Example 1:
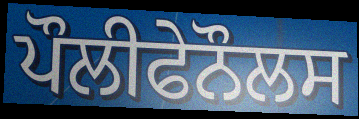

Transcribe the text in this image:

ਪੌਲੀਫੇਨੌਲਸ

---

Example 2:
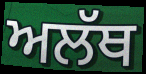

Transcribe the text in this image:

ਅਲੱਥ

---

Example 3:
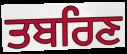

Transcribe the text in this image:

ਤਬਰਿਣ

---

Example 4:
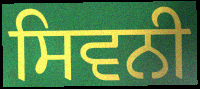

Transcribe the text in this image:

ਸਿਵਨੀ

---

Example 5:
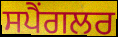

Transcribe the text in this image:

ਸਪੈਂਗਲਰ